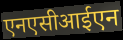
एनएसीआईएन